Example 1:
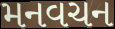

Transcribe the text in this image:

મનવચન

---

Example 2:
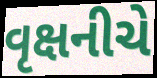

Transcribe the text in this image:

વૃક્ષનીચે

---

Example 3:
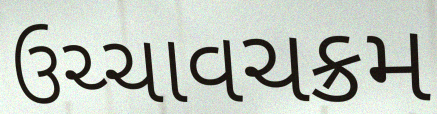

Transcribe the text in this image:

ઉચ્ચાવચક્રમ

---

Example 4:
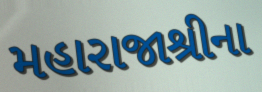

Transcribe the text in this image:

મહારાજાશ્રીના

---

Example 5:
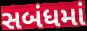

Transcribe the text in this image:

સબંધમાં